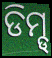
ଡିମ୍ଡ୍